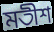
মতীশ